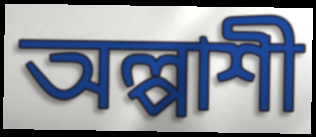
অল্পাশী